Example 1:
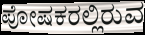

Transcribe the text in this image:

ಪೋಷಕರಲ್ಲಿರುವ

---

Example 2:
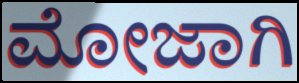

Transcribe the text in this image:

ಮೋಜಾಗಿ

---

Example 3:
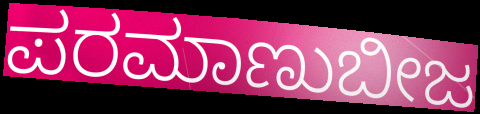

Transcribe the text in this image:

ಪರಮಾಣುಬೀಜ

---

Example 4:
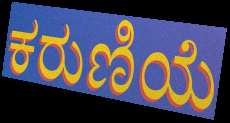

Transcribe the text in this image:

ಕರುಣಿಯೆ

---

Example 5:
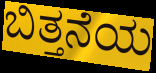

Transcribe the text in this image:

ಬಿತ್ತನೆಯ